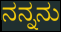
ನನ್ನನು